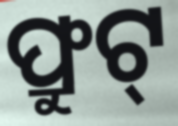
ଫ୍ରୁଟ୍